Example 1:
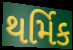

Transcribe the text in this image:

થર્મિક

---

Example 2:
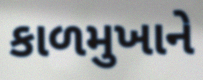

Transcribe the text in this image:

કાળમુખાને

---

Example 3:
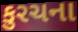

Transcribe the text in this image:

કુરચના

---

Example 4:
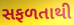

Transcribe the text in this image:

સફળતાથી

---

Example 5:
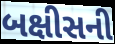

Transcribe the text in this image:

બક્ષીસની